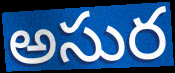
అసుర